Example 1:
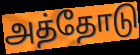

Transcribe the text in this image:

அத்தோடு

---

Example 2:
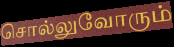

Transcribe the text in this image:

சொல்லுவோரும்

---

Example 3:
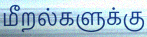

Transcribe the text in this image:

மீறல்களுக்கு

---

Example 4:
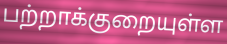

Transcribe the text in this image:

பற்றாக்குறையுள்ள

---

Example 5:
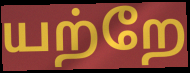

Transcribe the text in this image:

யற்றே